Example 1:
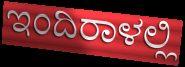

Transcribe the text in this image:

ಇಂದಿರಾಳಲ್ಲಿ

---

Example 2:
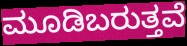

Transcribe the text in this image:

ಮೂಡಿಬರುತ್ತವೆ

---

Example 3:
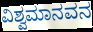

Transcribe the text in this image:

ವಿಶ್ವಮಾನವನ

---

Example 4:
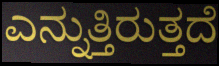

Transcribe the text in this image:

ಎನ್ನುತ್ತಿರುತ್ತದೆ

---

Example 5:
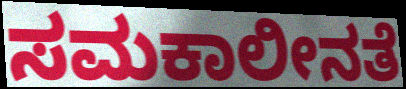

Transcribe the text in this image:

ಸಮಕಾಲೀನತೆ